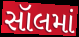
સૉલમાં